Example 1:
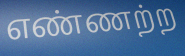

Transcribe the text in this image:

எண்ணற்ற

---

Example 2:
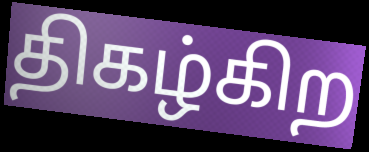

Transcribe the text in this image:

திகழ்கிற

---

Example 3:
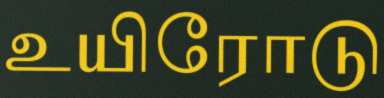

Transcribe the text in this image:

உயிரோடு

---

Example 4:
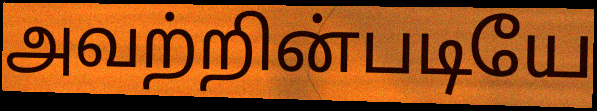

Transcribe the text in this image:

அவற்றின்படியே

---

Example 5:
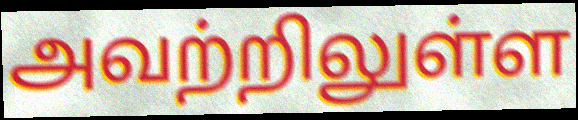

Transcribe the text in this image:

அவற்றிலுள்ள